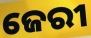
ଜେରୀ